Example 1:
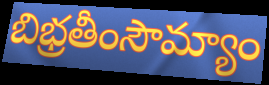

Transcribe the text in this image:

బిభ్రతీంసౌమ్యాం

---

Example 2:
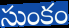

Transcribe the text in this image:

సుంకం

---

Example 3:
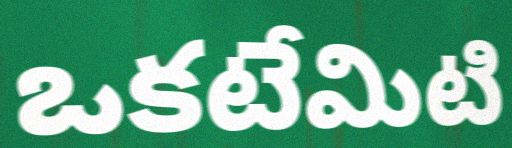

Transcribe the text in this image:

ఒకటేమిటి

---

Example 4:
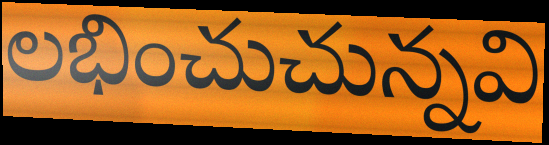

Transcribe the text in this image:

లభించుచున్నవి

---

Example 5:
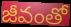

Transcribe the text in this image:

జీవంతో